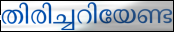
തിരിച്ചറിയേണ്ട